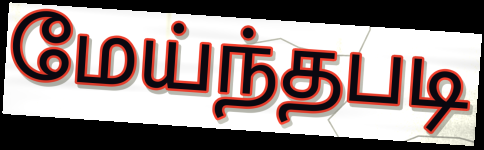
மேய்ந்தபடி